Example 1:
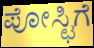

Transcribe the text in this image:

ಪೋಸ್ಟಿಗೆ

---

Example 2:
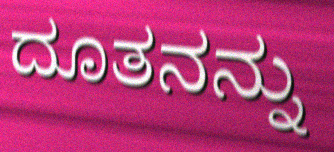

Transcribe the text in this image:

ದೂತನನ್ನು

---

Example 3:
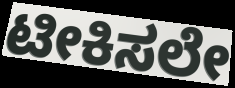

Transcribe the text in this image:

ಟೀಕಿಸಲೇ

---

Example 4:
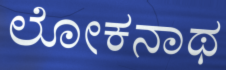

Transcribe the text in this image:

ಲೋಕನಾಥ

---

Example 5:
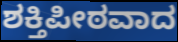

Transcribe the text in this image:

ಶಕ್ತಿಪೀಠವಾದ